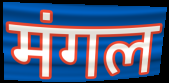
मंगल